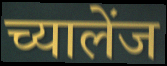
च्यालेंज